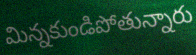
మిన్నకుండిపోతున్నారు